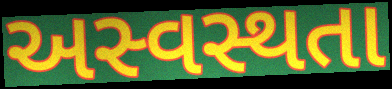
અસ્વસ્થતા